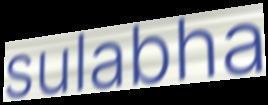
sulabha